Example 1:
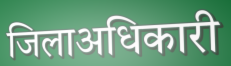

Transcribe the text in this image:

जिलाअधिकारी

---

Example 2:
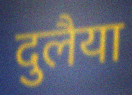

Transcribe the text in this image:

दुलैया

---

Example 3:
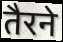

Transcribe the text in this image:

तैरने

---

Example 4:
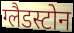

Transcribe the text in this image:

ग्लैडस्टोन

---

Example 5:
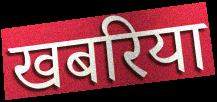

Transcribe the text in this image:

खबरिया